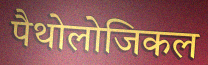
पैथोलोजिकल